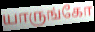
யாருங்கோ